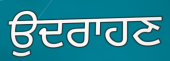
ਉਦਰਾਹਣ